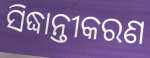
ସିଦ୍ଧାନ୍ତୀକରଣ